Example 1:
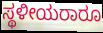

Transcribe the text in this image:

ಸ್ಥಳೀಯರಾರೂ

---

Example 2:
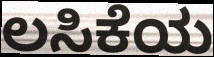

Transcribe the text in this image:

ಲಸಿಕೆಯ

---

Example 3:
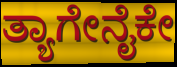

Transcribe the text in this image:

ತ್ಯಾಗೇನೈಕೇ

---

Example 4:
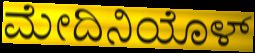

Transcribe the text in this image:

ಮೇದಿನಿಯೊಳ್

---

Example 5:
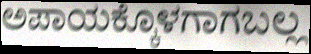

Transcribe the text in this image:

ಅಪಾಯಕ್ಕೊಳಗಾಗಬಲ್ಲ